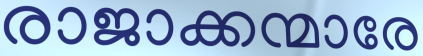
രാജാക്കന്മാരേ